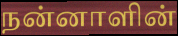
நன்னாளின்